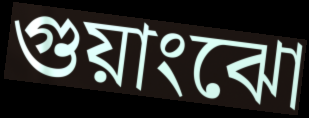
গুয়াংঝো